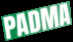
PADMA